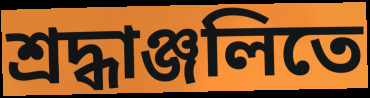
শ্রদ্ধাঞ্জলিতে